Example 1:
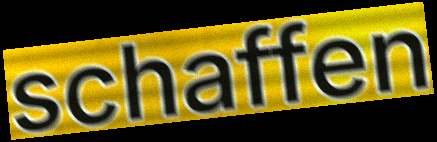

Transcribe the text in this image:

schaffen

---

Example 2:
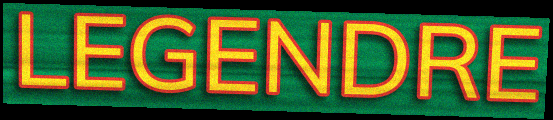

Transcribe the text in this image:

LEGENDRE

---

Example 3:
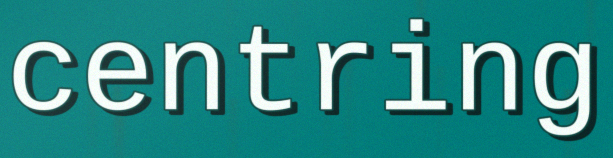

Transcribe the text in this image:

centring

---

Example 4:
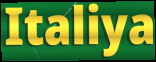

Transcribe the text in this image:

Italiya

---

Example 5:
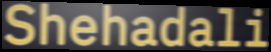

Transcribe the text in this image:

Shehadali